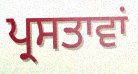
ਪ੍ਰਸਤਾਵਾਂ